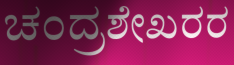
ಚಂದ್ರಶೇಖರರ